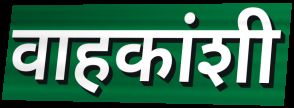
वाहकांशी